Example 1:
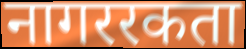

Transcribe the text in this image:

नागररकता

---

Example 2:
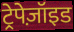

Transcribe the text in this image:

ट्रेपेज़ॉइड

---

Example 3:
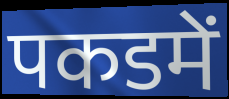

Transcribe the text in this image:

पकडमें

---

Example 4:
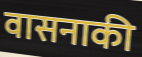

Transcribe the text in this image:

वासनाकी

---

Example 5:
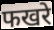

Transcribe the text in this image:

फखरे